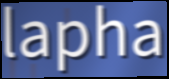
lapha